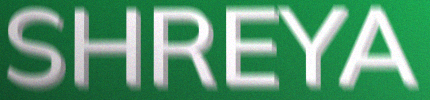
SHREYA